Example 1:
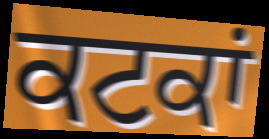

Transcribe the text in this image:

ਕਟਕਾਂ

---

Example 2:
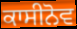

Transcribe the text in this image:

ਕਾਸੀਨੋਵ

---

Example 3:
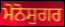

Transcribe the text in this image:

ਮੋਨੋਸੁਗਰ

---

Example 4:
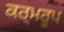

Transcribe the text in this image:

ਕਰ੍ਮਰੂਪ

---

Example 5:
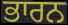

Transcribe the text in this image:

ਭਾਰਨ